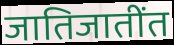
जातिजातींत